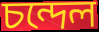
চন্দেল